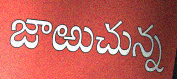
జాఱుచున్న